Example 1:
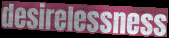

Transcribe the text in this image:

desirelessness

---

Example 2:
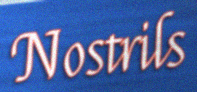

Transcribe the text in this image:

Nostrils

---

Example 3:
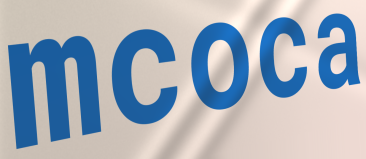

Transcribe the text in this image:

mcoca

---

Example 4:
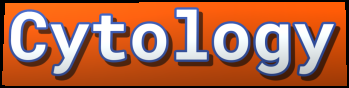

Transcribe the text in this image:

Cytology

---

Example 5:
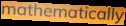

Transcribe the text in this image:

mathematically